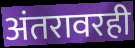
अंतरावरही